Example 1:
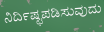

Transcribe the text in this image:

ನಿರ್ದಿಷ್ಟಪಡಿಸುವುದು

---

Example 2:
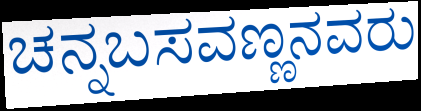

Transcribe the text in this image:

ಚನ್ನಬಸವಣ್ಣನವರು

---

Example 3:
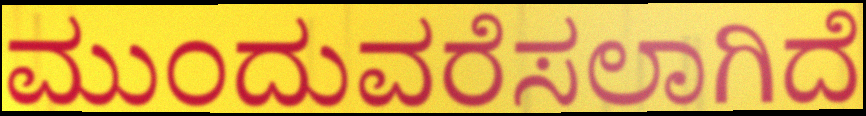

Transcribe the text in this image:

ಮುಂದುವರೆಸಲಾಗಿದೆ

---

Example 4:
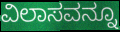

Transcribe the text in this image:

ವಿಲಾಸವನ್ನೂ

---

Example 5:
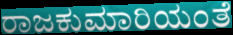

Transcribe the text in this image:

ರಾಜಕುಮಾರಿಯಂತೆ